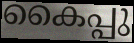
കൈപ്പു